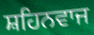
ਸ਼ਹਿਨਵਾਜ